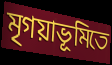
মৃগয়াভূমিতে